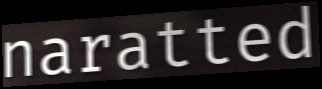
naratted